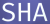
SHA